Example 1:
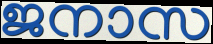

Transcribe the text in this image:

ജനാസ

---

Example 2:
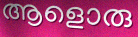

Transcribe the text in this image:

ആളൊരു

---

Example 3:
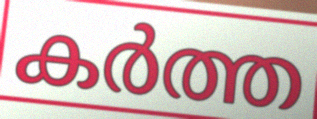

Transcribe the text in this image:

കർത്ത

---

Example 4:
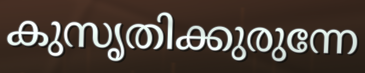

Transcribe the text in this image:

കുസൃതിക്കുരുന്നേ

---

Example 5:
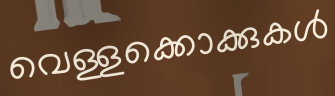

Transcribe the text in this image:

വെള്ളക്കൊക്കുകൾ